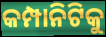
କମ୍ପାନିଟିକୁ